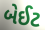
બેઈટ